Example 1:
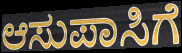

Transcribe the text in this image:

ಆಸುಪಾಸಿಗೆ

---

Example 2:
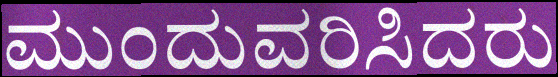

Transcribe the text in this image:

ಮುಂದುವರಿಸಿದರು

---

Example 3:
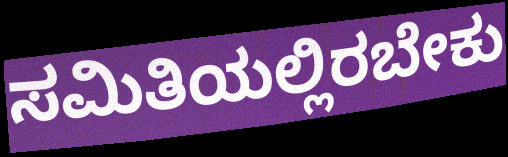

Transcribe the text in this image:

ಸಮಿತಿಯಲ್ಲಿರಬೇಕು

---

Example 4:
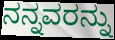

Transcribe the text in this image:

ನನ್ನವರನ್ನು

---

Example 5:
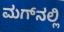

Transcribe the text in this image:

ಮಗ್‌ನಲ್ಲಿ